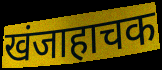
खंजाहाचक